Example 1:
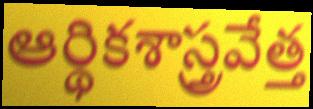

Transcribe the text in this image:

ఆర్థికశాస్త్రవేత్త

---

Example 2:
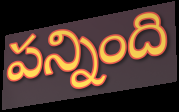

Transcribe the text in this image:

పన్నింది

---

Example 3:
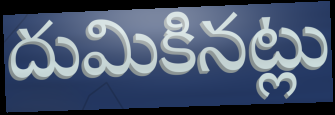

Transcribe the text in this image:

దుమికినట్లు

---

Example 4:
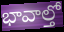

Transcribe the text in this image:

భావాల్తో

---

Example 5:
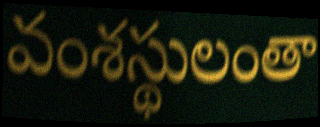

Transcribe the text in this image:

వంశస్థులంతా